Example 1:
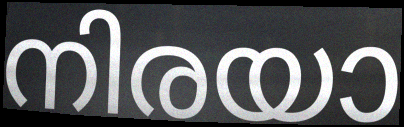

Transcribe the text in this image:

നിരയാ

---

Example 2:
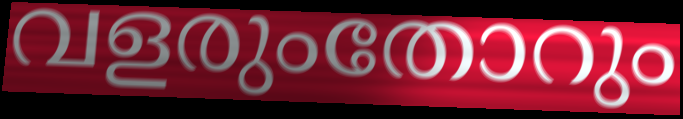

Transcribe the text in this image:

വളരുംതോറും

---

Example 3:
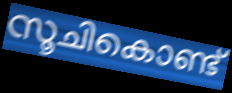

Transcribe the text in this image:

സൂചികൊണ്ട്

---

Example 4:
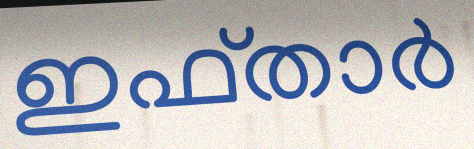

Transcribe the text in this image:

ഇഫ്താർ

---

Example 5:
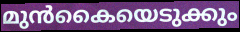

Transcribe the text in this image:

മുൻകൈയെടുക്കും